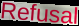
Refusal